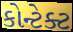
કોન્ટેક્ટ